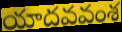
యాదవవంశ